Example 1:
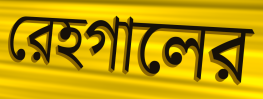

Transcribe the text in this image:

রেহগালের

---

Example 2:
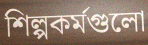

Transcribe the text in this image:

শিল্পকর্মগুলো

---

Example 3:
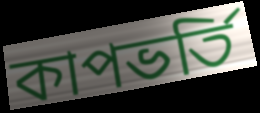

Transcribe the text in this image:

কাপভর্তি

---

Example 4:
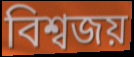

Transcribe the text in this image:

বিশ্বজয়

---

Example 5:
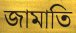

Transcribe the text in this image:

জামাতি